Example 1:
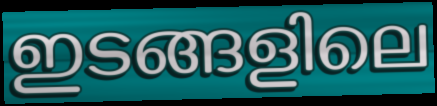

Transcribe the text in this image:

ഇടങ്ങളിലെ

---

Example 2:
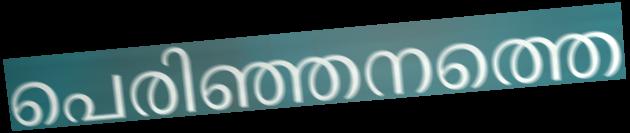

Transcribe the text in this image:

പെരിഞ്ഞനത്തെ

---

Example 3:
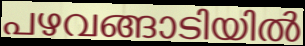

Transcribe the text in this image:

പഴവങ്ങാടിയിൽ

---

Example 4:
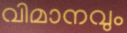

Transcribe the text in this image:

വിമാനവും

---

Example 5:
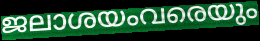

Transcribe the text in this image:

ജലാശയംവരെയും